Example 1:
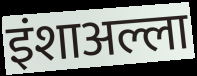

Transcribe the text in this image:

इंशाअल्ला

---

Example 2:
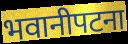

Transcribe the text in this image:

भवानीपटना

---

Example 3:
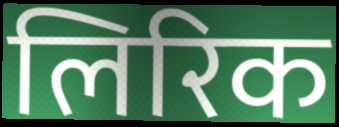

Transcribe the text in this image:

लिरिक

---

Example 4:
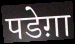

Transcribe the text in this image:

पडेग़ा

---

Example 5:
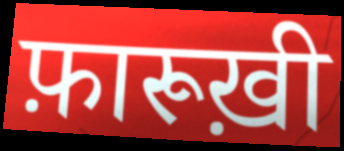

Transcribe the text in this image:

फ़ारूख़ी